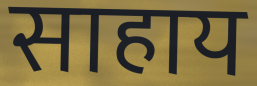
साहाय